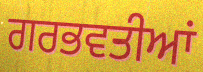
ਗਰਭਵਤੀਆਂ